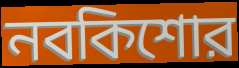
নবকিশোর